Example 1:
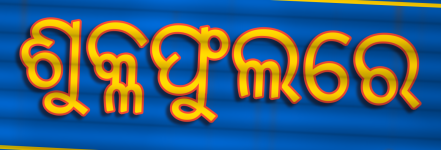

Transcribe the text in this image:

ଶୁକ୍ଳଫୁଲରେ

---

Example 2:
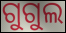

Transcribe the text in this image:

ଗୁଗୁଲ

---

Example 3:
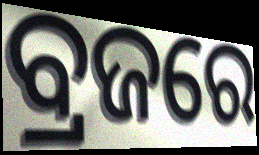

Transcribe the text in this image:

ବ୍ରଜରେ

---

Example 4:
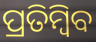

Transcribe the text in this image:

ପ୍ରତିମ୍ବିବ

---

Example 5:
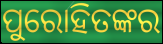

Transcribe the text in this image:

ପୁରୋହିତଙ୍କର